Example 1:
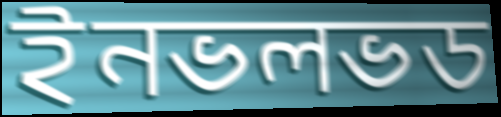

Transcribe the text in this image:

ইনভলভড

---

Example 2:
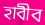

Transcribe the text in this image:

হাবীব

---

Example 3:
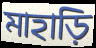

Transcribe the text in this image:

মাহাড়ি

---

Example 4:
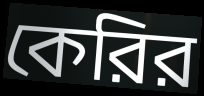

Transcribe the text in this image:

কেরির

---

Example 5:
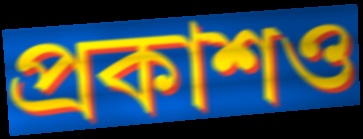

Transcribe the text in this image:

প্রকাশও